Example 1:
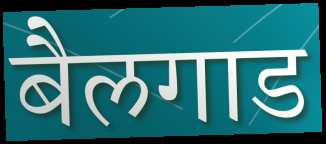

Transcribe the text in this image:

बैलगाड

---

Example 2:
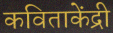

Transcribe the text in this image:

कविताकेंद्री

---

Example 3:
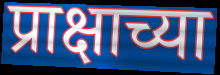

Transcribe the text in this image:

प्राक्षाच्या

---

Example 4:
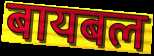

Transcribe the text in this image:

बायबल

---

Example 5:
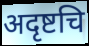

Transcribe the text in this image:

अदृष्टचि